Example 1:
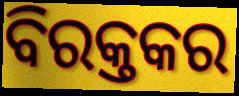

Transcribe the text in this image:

ବିରକ୍ତକର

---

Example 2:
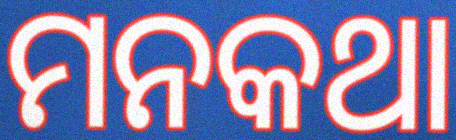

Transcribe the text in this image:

ମନକଥା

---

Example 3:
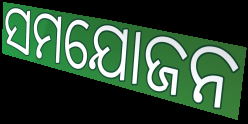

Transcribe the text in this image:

ସମଯୋଜନ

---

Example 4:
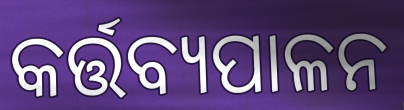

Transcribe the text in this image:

କର୍ତ୍ତବ୍ୟପାଳନ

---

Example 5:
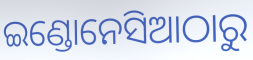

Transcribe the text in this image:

ଇଣ୍ଡୋନେସିଆଠାରୁ